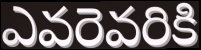
ఎవరెవరికి